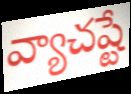
వ్యాచష్టే